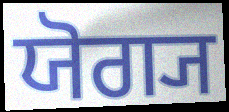
ਯੋਗ੍ਯ